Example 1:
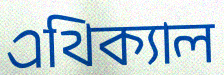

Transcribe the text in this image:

এথিক্যাল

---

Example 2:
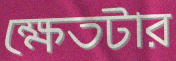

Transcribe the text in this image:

ক্ষেতটার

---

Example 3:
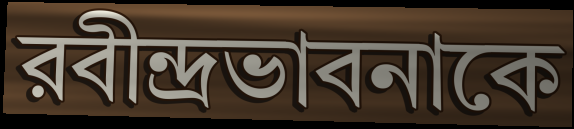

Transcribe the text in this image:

রবীন্দ্রভাবনাকে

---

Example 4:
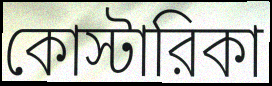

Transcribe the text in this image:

কোস্টারিকা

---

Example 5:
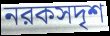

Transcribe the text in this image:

নরকসদৃশ